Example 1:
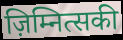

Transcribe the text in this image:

ज़िम्नित्सकी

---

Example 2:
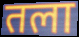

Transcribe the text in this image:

तला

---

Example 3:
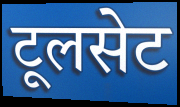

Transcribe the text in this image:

टूलसेट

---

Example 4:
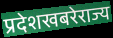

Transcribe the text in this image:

प्रदेशखबरेराज्य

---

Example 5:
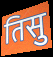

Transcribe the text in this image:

तिसु